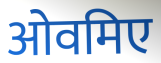
ओवमिए